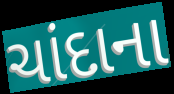
ચાંદાના